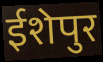
ईशेपुर